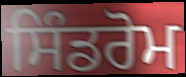
ਸਿੰਡਰੋਮ